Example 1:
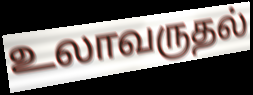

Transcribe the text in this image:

உலாவருதல்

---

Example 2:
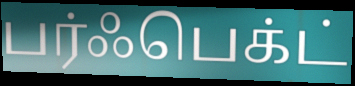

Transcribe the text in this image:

பர்ஃபெக்ட்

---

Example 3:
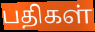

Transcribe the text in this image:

பதிகள்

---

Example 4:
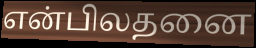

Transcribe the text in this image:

என்பிலதனை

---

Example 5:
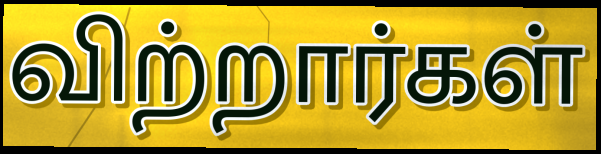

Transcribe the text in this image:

விற்றார்கள்